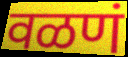
वळणं